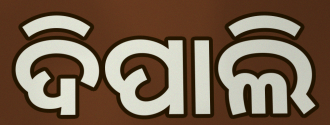
ଦିପାଲି